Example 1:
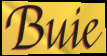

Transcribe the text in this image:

Buie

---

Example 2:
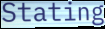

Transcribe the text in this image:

Stating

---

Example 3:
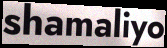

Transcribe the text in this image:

shamaliyo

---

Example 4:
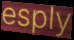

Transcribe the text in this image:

esply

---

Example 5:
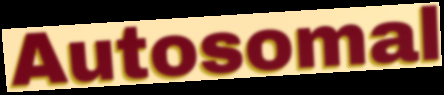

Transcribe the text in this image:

Autosomal